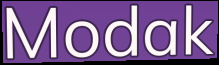
Modak